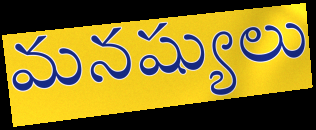
మనష్యులు